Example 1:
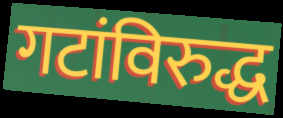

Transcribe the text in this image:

गटांविरुद्ध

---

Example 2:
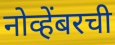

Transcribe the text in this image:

नोव्हेंबरची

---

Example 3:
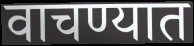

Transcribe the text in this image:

वाचण्यात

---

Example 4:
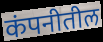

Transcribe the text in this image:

कंपनीतील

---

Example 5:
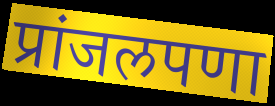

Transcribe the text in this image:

प्रांजलपणा